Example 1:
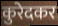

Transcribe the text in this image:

कुरेदकर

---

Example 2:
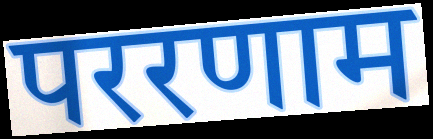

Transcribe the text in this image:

पररणाम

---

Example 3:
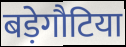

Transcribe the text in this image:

बड़ेगौटिया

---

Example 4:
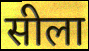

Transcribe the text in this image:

सीला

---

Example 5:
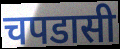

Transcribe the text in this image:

चपडासी